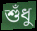
শুঁধু